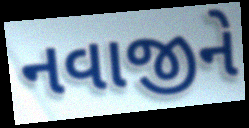
નવાજીને